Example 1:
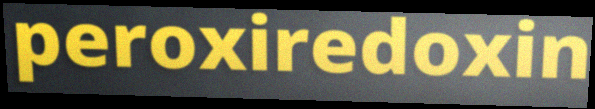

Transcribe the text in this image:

peroxiredoxin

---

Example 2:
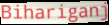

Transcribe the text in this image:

Bihariganj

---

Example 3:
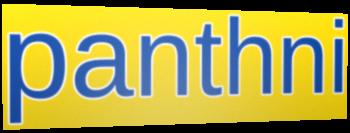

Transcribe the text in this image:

panthni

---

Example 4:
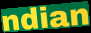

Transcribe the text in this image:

ndian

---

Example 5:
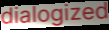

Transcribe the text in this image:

dialogized